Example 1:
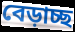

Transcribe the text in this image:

বেড়াচ্ছ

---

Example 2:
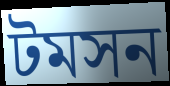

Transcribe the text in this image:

টমসন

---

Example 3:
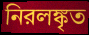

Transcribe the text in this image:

নিরলঙ্কৃত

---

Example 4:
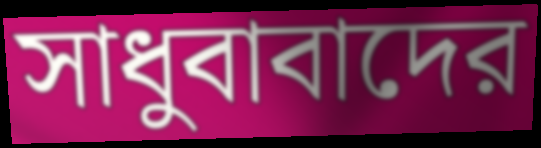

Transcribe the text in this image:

সাধুবাবাদের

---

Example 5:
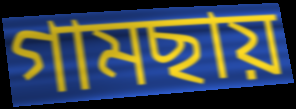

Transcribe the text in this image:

গামছায়